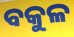
ବକୁଳ